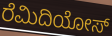
ರೆಮಿದಿಯೋಸ್